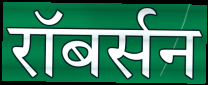
रॉबर्सन